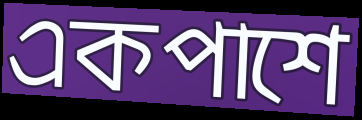
একপাশে